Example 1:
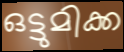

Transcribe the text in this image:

ഒട്ടുമിക്ക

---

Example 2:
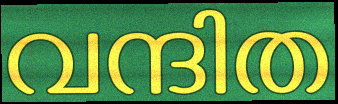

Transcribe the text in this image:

വന്ദിത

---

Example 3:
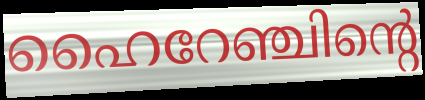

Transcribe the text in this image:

ഹൈറേഞ്ചിന്റെ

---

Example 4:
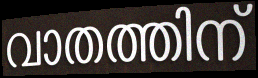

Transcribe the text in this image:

വാതത്തിന്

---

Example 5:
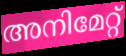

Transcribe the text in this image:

അനിമേറ്റ്